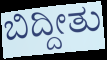
ಬಿದ್ದೀತು